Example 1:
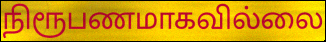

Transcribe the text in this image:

நிரூபணமாகவில்லை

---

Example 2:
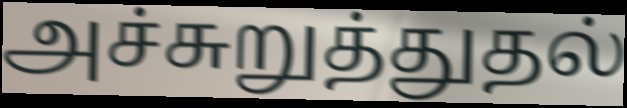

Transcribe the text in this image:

அச்சுறுத்துதல்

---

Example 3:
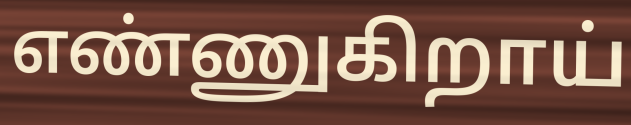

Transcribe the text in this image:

எண்ணுகிறாய்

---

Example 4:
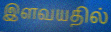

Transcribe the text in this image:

இளவயதில்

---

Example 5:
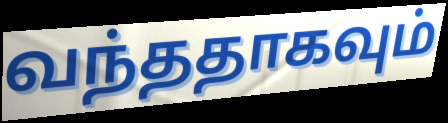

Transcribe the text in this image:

வந்ததாகவும்